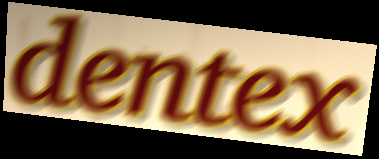
dentex